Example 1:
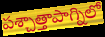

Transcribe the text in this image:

పశ్చాత్తాపాగ్నిలో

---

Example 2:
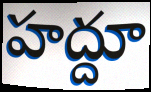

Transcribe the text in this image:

హద్దూ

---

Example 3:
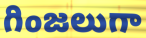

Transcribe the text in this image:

గింజలుగా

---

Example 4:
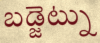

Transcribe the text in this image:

బడ్జెట్ను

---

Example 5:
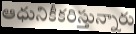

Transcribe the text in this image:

ఆధునికీకరిస్తున్నారు